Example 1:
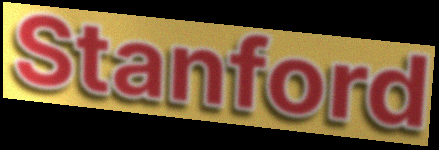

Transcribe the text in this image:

Stanford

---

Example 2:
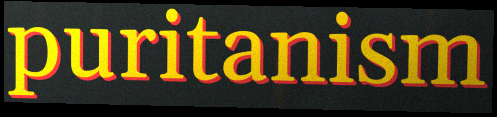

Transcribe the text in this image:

puritanism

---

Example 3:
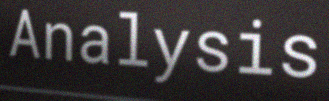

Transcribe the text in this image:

Analysis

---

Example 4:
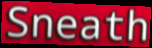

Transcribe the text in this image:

Sneath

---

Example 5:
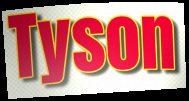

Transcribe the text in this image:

Tyson